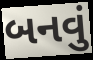
બનવું